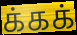
க்கக்